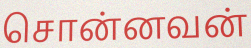
சொன்னவன்